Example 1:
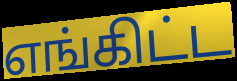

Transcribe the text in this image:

எங்கிட்ட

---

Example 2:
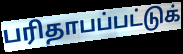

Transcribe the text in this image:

பரிதாபப்பட்டுக்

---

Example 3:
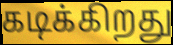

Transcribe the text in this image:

கடிக்கிறது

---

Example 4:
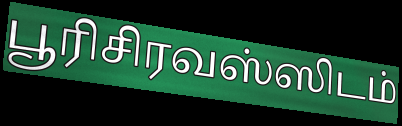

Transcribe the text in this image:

பூரிசிரவஸ்ஸிடம்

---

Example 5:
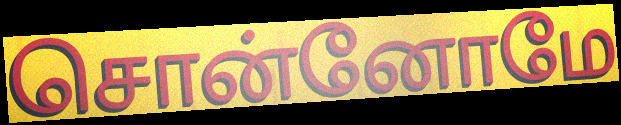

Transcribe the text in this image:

சொன்னோமே